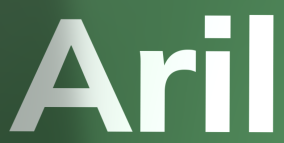
Aril